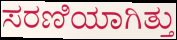
ಸರಣಿಯಾಗಿತ್ತು